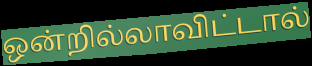
ஒன்றில்லாவிட்டால்